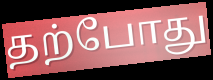
தற்போது